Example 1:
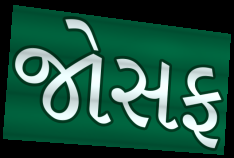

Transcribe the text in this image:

જોસફ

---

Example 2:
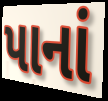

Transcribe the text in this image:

પાનાં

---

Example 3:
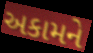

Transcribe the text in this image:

અકામને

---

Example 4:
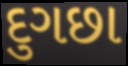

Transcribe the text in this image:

દુગછા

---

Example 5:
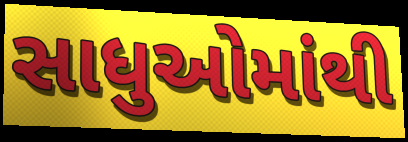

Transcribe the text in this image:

સાધુઓમાંથી